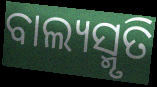
ବାଲ୍ୟସ୍ମୃତି